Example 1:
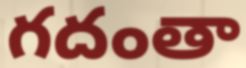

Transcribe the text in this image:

గదంతా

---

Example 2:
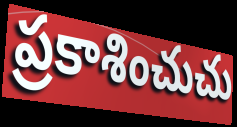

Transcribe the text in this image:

ప్రకాశించుచు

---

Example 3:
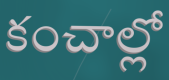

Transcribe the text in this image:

కంచాల్లో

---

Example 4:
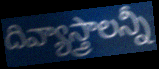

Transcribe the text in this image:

దివ్యాస్త్రాలన్నీ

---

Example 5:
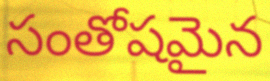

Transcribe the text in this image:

సంతోషమైన